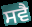
ਸਵੈ